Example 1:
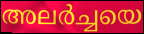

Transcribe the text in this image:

അലർച്ചയെ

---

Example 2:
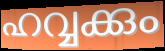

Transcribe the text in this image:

ഹവ്വക്കും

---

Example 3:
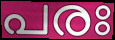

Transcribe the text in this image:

പരഃ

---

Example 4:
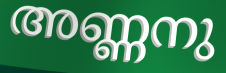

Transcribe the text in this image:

അണ്ണനു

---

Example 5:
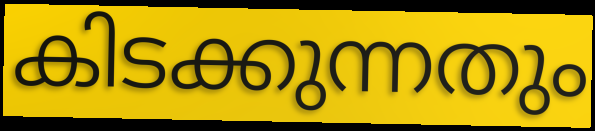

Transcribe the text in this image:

കിടക്കുന്നതും